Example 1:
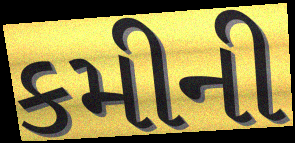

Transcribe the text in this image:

કમીની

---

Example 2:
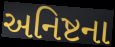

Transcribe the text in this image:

અનિષ્ટના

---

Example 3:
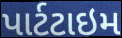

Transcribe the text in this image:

પાર્ટટાઇમ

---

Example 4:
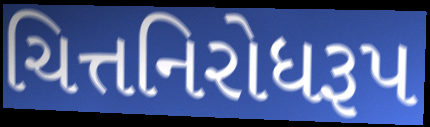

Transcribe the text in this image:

ચિત્તનિરોધરૂપ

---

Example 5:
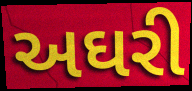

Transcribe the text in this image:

અઘરી